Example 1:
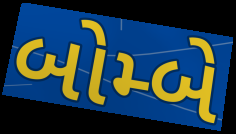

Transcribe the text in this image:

બોમ્બે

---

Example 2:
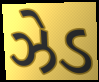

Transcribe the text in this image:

ઝેડ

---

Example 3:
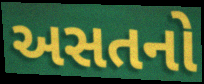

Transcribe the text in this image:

અસતનો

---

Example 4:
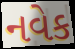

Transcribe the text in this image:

નવેક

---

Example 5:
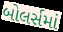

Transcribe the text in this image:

બોલર્સમાં